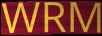
WRM